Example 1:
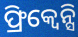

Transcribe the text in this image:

ଫ୍ରିକ୍ୱେନ୍ସି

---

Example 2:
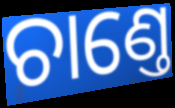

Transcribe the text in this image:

ଚାଣ୍ତେ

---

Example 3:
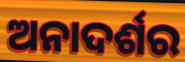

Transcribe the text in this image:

ଅନାଦର୍ଶର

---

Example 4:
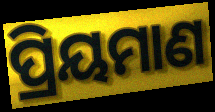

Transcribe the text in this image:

ପ୍ରିୟମାଣ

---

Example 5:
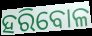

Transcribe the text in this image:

ହରିବୋଳ